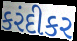
કરંદીકર